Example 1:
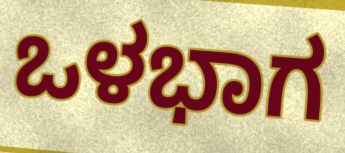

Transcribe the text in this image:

ಒಳಭಾಗ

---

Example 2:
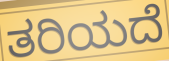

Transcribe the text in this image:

ತರಿಯದೆ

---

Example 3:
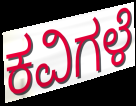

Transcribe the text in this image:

ಕವಿಗಳೆ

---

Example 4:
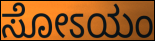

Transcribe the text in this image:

ಸೋಽಯಂ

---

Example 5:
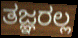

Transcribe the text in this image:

ತಜ್ಞರಲ್ಲ